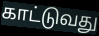
காட்டுவது